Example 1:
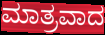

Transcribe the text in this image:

ಮಾತ್ರವಾದ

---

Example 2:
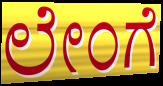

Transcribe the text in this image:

ಲೇಂಗೆ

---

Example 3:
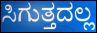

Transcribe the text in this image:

ಸಿಗುತ್ತದಲ್ಲ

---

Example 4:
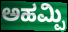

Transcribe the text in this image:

ಅಹಮ್ಪಿ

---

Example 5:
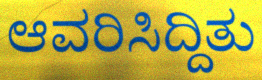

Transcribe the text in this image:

ಆವರಿಸಿದ್ದಿತು